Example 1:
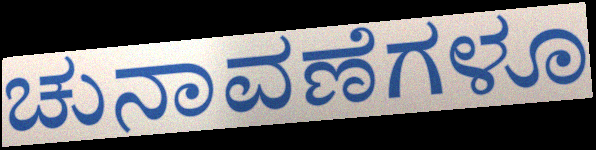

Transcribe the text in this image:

ಚುನಾವಣೆಗಳೂ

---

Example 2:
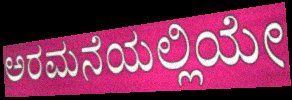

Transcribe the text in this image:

ಅರಮನೆಯಲ್ಲಿಯೇ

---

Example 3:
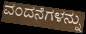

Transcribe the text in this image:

ವಂದನೆಗಳನ್ನು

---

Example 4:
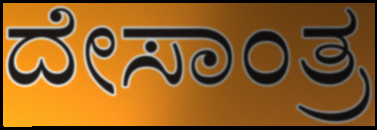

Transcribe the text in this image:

ದೇಸಾಂತ್ರ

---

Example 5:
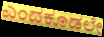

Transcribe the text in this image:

ಎಂದಕೂಡಲೇ